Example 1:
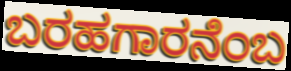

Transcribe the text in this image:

ಬರಹಗಾರನೆಂಬ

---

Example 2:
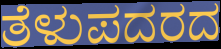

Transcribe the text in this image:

ತೆಳುಪದರದ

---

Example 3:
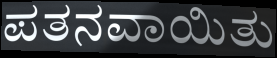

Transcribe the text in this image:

ಪತನವಾಯಿತು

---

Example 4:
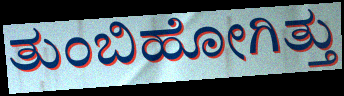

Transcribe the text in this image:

ತುಂಬಿಹೋಗಿತ್ತು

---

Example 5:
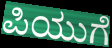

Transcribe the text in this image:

ಪಿಯುಗೆ